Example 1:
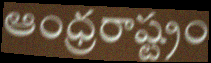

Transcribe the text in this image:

ఆంధ్రరాష్ట్రం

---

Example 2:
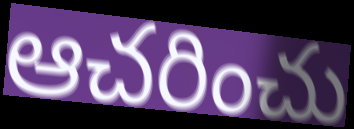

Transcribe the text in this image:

ఆచరించు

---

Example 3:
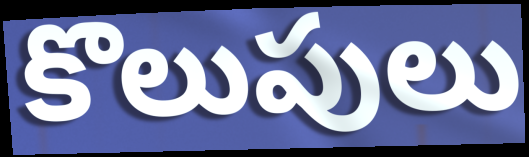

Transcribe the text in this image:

కొలుపులు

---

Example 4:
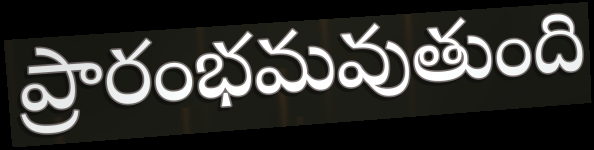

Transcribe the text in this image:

ప్రారంభమవుతుంది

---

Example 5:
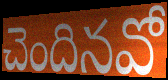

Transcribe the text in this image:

చెందినవో